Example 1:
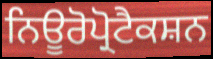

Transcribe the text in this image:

ਨਿਊਰੋਪ੍ਰੋਟੈਕਸ਼ਨ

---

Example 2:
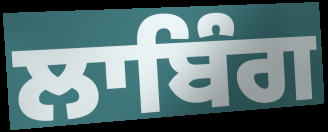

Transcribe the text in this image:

ਲਾਬਿੰਗ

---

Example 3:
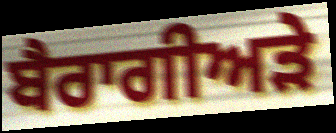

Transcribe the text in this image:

ਬੈਰਾਗੀਅੜੇ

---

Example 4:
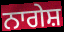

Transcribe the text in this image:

ਨਾਗੇਸ਼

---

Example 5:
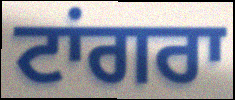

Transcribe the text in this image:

ਟਾਂਗਰਾ